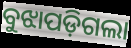
ବୁଝାପଡ଼ିଗଲା